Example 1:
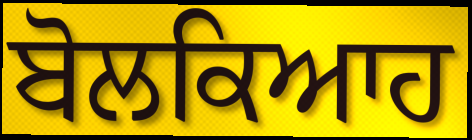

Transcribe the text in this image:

ਬੋਲਕਿਆਹ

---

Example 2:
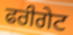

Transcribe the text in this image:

ਫਰੀਗੇਟ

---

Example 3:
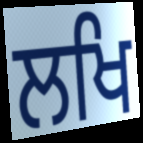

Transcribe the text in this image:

ਲਖਿ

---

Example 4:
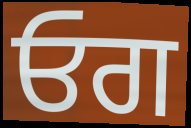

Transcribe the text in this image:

ਓਗ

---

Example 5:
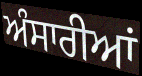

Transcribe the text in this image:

ਅੰਸਾਰੀਆਂ